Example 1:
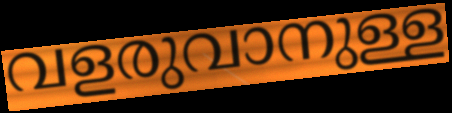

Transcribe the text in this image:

വളരുവാനുള്ള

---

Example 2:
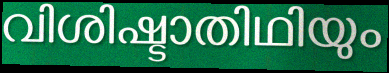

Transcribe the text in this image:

വിശിഷ്ടാതിഥിയും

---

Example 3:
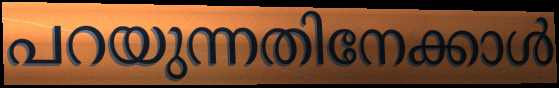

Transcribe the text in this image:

പറയുന്നതിനേക്കാൾ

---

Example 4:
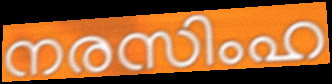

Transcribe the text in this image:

നരസിംഹ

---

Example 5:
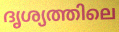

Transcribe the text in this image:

ദൃശ്യത്തിലെ